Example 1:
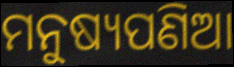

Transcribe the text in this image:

ମନୁଷ୍ୟପଣିଆ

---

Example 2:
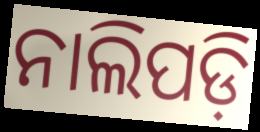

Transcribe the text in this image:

ନାଲିପଡ଼ି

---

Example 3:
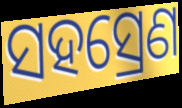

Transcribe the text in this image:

ସହସ୍ରେଣ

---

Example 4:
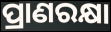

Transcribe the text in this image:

ପ୍ରାଣରକ୍ଷା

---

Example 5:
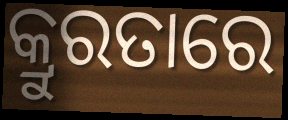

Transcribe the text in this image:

କ୍ରୁରତାରେ